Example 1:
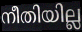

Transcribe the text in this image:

നീതിയില്ല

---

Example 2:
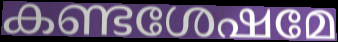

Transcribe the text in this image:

കണ്ടശേഷമേ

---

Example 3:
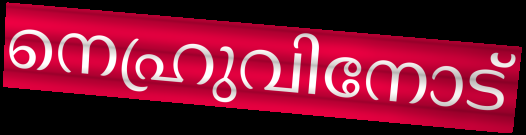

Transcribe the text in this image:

നെഹ്രുവിനോട്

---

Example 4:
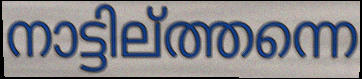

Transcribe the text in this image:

നാട്ടില്ത്തന്നെ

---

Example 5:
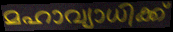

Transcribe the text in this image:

മഹാവ്യാധിക്ക്